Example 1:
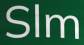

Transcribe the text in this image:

Slm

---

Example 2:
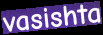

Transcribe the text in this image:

vasishta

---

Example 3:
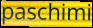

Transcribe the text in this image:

paschimi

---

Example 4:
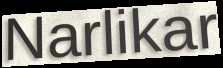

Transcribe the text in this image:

Narlikar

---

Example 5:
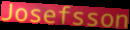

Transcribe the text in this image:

Josefsson